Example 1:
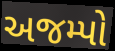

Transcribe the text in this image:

અજમ્પો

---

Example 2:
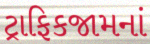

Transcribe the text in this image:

ટ્રાફિકજામનાં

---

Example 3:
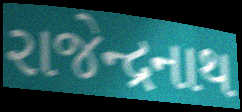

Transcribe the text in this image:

રાજેન્દ્રનાથ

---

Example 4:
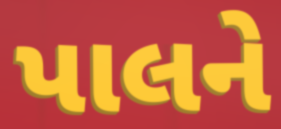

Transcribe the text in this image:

પાલને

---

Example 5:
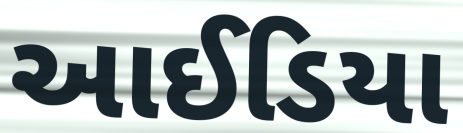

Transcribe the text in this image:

આઈડિયા